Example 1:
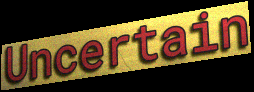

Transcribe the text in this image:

Uncertain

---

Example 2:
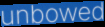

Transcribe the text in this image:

unbowed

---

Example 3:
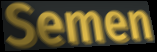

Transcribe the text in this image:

Semen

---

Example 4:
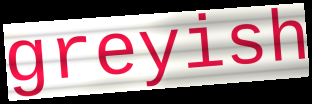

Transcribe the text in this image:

greyish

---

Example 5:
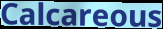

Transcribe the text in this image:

Calcareous